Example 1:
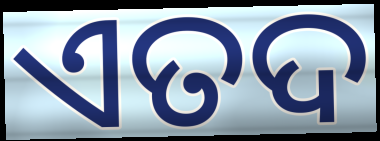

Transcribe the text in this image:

ଏତଦ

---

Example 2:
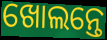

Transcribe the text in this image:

ଖୋଲନ୍ତେ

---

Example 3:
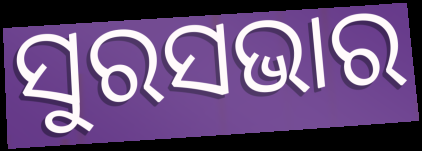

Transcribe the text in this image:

ସୁରସଭାର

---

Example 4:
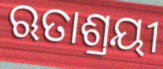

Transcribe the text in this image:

ଋତାଶ୍ରୟୀ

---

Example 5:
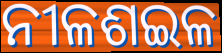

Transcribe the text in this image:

ନୀଳଶଇଳ